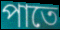
পাতে